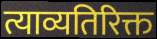
त्याव्यतिरिक्त